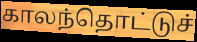
காலந்தொட்டுச்